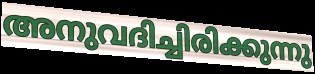
അനുവദിച്ചിരിക്കുന്നു